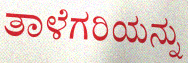
ತಾಳೆಗರಿಯನ್ನು